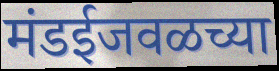
मंडईजवळच्या